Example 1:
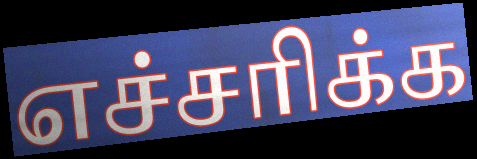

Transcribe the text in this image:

எச்சரிக்க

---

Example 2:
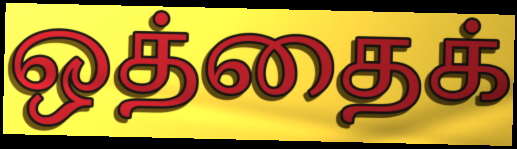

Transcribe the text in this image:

ஒத்தைக்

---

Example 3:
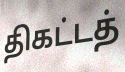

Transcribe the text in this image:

திகட்டத்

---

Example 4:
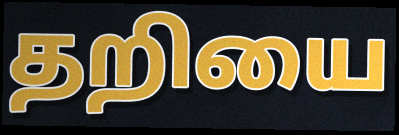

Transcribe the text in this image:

தறியை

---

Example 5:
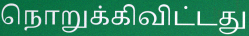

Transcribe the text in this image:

நொறுக்கிவிட்டது